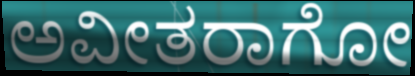
ಅವೀತರಾಗೋ